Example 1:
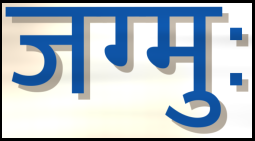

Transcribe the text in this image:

जग्मुः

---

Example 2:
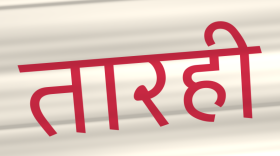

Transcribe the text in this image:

तारही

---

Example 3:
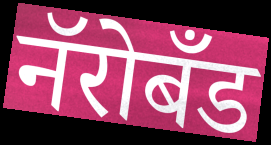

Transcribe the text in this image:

नॅरोबँड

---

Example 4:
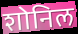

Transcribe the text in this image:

शोनिल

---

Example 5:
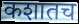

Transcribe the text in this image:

कशातच